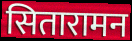
सितारामन